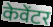
केवेंटर